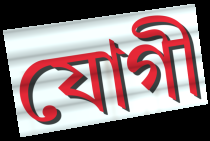
যোগী